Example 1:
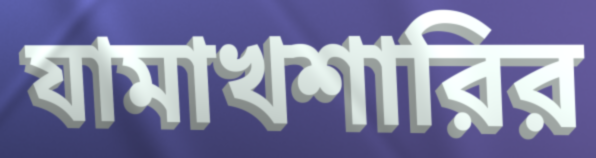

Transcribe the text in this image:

যামাখশারির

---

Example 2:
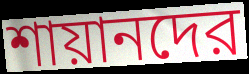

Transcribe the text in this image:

শায়ানদের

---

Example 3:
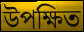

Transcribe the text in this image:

উপক্ষিত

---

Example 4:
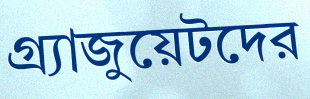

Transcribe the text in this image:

গ্র্যাজুয়েটদের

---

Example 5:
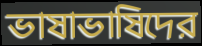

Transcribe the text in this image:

ভাষাভাষিদের